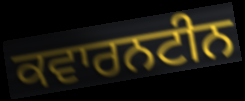
ਕਵਾਰਨਟੀਨ